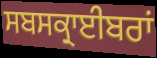
ਸਬਸਕ੍ਰਾਈਬਰਾਂ